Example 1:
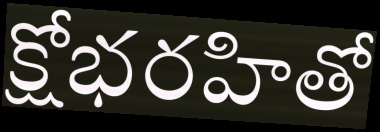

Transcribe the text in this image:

క్షోభరహితో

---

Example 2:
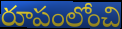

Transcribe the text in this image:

రూపంలోంచి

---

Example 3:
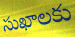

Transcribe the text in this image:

సుఖాలకు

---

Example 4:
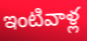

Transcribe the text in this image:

ఇంటివాళ్ల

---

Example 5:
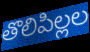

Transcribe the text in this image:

తొలిపిల్లల